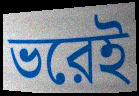
ভরেই